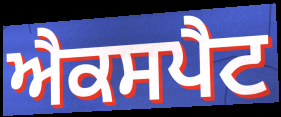
ਐਕਸਪੈਟ